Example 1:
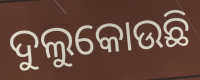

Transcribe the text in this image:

ଦୁଲୁକୋଉଛି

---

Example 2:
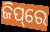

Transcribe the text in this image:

ଜିପ୍‌ରେ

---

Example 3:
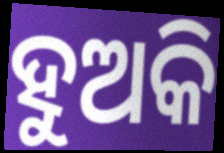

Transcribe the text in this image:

ହୁଅକି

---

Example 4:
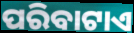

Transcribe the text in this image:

ପରିବାଟାଏ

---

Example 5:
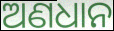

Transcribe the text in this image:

ଅଣଧାନ